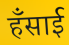
हँसाई